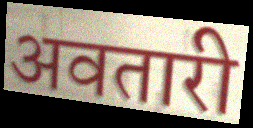
अवतारी